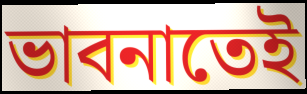
ভাবনাতেই